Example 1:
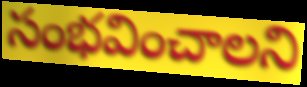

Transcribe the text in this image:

సంభవించాలని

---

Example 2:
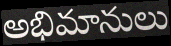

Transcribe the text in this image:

అభిమానులు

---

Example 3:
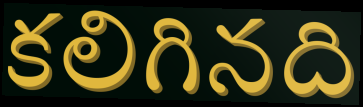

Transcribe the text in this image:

కలిగినది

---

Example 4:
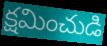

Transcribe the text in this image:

క్షమించుడి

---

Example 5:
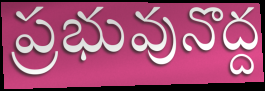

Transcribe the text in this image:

ప్రభువునొద్ద